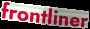
frontliner